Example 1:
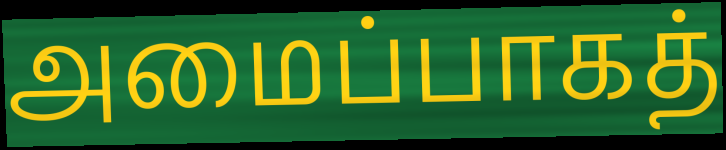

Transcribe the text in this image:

அமைப்பாகத்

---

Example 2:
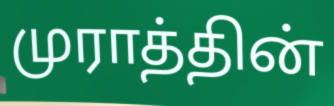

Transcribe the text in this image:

முராத்தின்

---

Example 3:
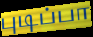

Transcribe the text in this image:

புடிப்பா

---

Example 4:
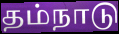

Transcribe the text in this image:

தம்நாடு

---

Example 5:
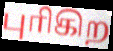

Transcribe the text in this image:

புரிகிற